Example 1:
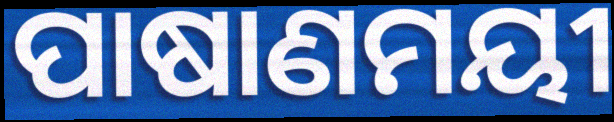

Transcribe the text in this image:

ପାଷାଣମୟୀ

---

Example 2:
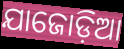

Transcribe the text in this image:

ଯାଜୋଡ଼ିଆ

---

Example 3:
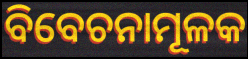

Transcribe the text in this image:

ବିବେଚନାମୂଳକ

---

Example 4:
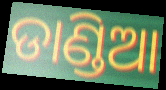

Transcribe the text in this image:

ଡାଣ୍ଡିଆ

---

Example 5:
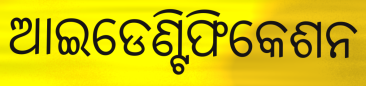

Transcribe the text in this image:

ଆଇଡେଣ୍ଟିଫିକେଶନ